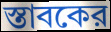
স্তাবকের